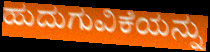
ಹುದುಗುವಿಕೆಯನ್ನು